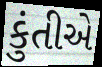
કુંતીએ